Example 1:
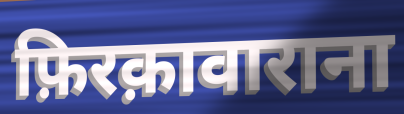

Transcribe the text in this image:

फ़िरक़ावाराना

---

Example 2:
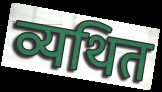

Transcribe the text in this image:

व्यथित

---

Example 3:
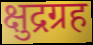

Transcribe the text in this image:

क्षुद्रग्रह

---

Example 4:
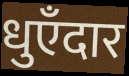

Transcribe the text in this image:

धुएँदार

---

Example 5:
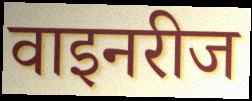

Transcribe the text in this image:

वाइनरीज